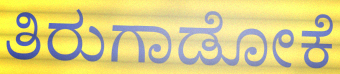
ತಿರುಗಾಡೋಕೆ